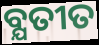
ବ୍ଯତୀତ